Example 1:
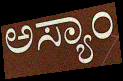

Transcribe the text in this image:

ಅಸ್ಯಾಂ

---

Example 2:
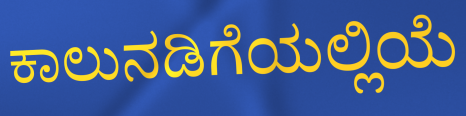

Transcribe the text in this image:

ಕಾಲುನಡಿಗೆಯಲ್ಲಿಯೆ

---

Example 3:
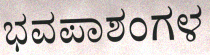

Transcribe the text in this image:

ಭವಪಾಶಂಗಳ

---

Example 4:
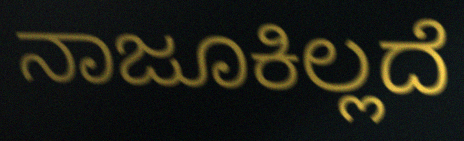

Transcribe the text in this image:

ನಾಜೂಕಿಲ್ಲದೆ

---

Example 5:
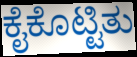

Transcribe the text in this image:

ಕೈಕೊಟ್ಟಿತು